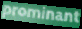
prominant